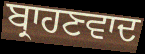
ਬ੍ਰਾਹਣਵਾਦ